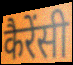
कैरेंसी